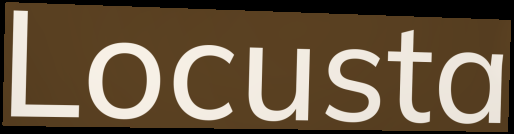
Locusta